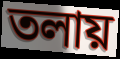
তলায়